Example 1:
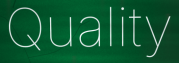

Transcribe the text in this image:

Quality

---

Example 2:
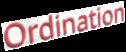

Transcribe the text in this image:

Ordination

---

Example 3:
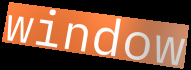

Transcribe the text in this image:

window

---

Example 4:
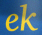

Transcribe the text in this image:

ek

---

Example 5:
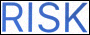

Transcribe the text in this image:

RISK